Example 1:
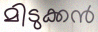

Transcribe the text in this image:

മിടുക്കൻ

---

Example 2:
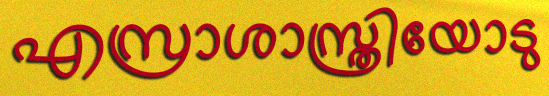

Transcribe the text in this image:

എസ്രാശാസ്ത്രിയോടു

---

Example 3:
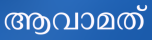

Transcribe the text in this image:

ആവാമത്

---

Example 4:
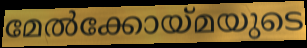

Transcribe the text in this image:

മേൽക്കോയ്മയുടെ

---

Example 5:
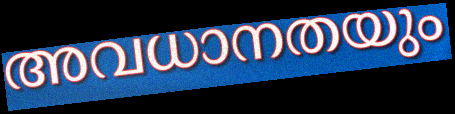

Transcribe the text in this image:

അവധാനതയും